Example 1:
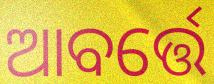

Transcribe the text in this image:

ଆବର୍ତ୍ତେ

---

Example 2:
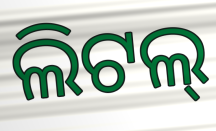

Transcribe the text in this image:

ଲିଟଲ୍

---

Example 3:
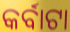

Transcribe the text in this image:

କର୍ବାଟା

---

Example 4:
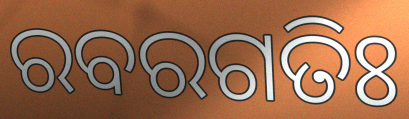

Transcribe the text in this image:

ରବରଗତିଃ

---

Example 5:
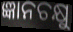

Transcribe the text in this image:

ଜ୍ଞାନଚକ୍ଷୁ